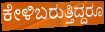
ಕೇಳಿಬರುತ್ತಿದ್ದರೂ